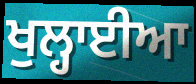
ਖੁਲ੍ਹਾਈਆ